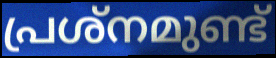
പ്രശ്നമുണ്ട്